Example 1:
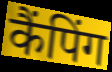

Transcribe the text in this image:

कैंपिंग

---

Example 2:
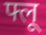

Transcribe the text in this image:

फ्लू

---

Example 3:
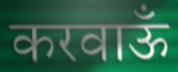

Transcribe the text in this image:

करवाऊँ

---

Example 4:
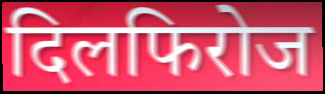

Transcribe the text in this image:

दिलफिरोज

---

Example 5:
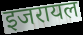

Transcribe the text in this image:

इजरायल